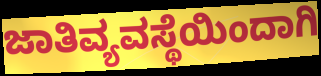
ಜಾತಿವ್ಯವಸ್ಥೆಯಿಂದಾಗಿ